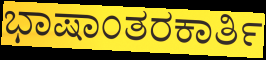
ಭಾಷಾಂತರಕಾರ್ತಿ